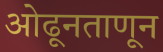
ओढूनताणून